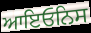
ਆਇਓਨਿਸ